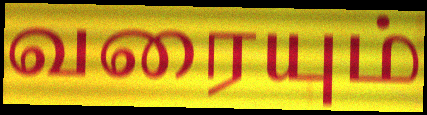
வரையும்